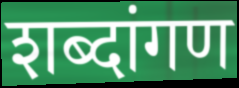
शब्दांगण